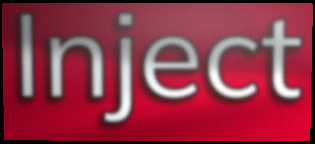
Inject